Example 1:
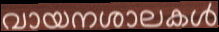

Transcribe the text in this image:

വായനശാലകൾ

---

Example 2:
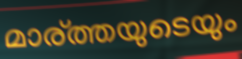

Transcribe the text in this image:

മാര്ത്തയുടെയും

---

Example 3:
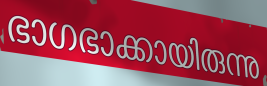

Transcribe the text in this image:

ഭാഗഭാക്കായിരുന്നു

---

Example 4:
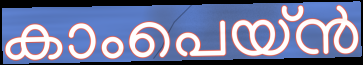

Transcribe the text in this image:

കാംപെയ്ൻ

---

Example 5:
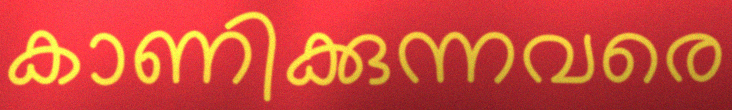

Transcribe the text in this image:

കാണിക്കുന്നവരെ